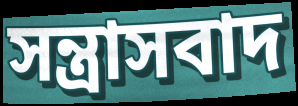
সন্ত্ৰাসবাদ